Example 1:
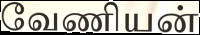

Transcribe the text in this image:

வேணியன்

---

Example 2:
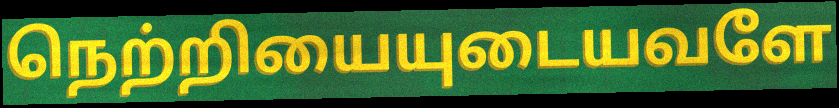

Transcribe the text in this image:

நெற்றியையுடையவளே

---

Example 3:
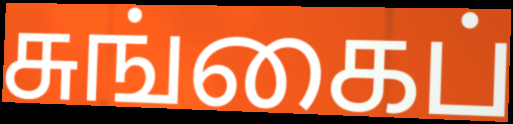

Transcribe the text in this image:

சுங்கைப்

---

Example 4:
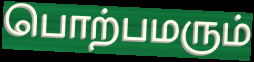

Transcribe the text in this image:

பொற்பமரும்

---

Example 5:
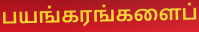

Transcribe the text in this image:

பயங்கரங்களைப்